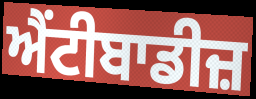
ਐਂਟੀਬਾਡੀਜ਼